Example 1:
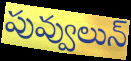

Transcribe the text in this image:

పువ్వులున్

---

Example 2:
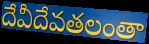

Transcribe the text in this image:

దేవీదేవతలంతా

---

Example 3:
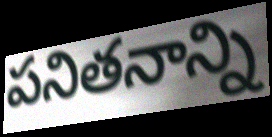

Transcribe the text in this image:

పనితనాన్ని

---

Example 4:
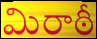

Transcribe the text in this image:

మిరాఠీ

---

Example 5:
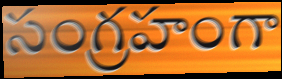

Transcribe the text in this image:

సంగ్రహంగా